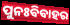
ପୁନଃବିବାହର